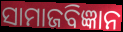
ସାମାଜବିଜ୍ଞାନ